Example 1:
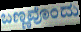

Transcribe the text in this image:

ಬಣ್ಣವೊಂದು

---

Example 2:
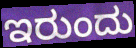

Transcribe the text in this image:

ಇರುಂದು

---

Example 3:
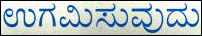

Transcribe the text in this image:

ಉಗಮಿಸುವುದು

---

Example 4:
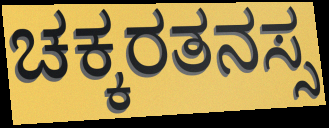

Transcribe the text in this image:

ಚಕ್ಕರತನಸ್ಸ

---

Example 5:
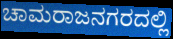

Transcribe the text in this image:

ಚಾಮರಾಜನಗರದಲ್ಲಿ